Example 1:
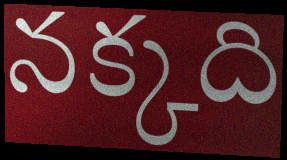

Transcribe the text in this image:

నక్కది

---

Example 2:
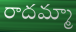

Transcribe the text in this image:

రాదమ్మా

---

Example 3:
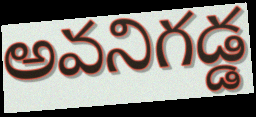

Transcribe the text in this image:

అవనిగడ్డ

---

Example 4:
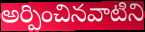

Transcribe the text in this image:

అర్పించినవాటిని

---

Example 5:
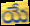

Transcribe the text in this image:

యే